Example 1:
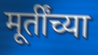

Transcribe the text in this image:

मूर्तींच्या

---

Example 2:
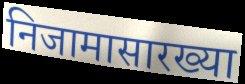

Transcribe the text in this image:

निजामासारख्या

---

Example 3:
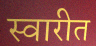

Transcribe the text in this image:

स्वारीत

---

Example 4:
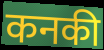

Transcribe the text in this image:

कनकी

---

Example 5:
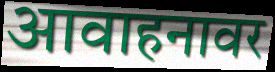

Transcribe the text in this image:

आवाहनावर